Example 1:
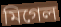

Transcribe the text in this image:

মিগেল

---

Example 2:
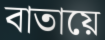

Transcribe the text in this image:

বাতায়ে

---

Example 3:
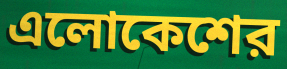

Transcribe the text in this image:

এলোকেশের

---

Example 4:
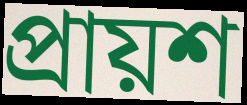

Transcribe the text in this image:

প্রায়শ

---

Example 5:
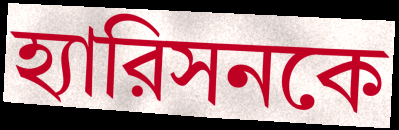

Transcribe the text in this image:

হ্যারিসনকে